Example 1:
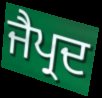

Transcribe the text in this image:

ਜੈਪ੍ਰਦ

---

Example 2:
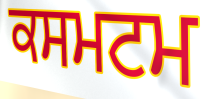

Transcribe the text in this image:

ਕਸਮਟਮ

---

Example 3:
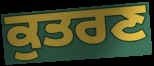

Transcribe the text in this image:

ਕੁਤਰਣ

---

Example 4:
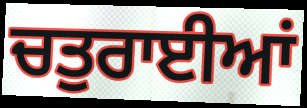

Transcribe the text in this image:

ਚਤੁਰਾਈਆਂ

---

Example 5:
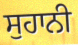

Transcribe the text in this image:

ਸੁਹਾਨੀ